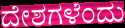
ದೇಶಗಳೆಂದು